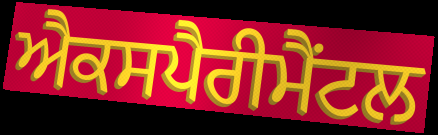
ਐਕਸਪੈਰੀਮੈਂਟਲ